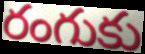
రంగుకు